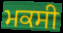
ਮਕਸੀ